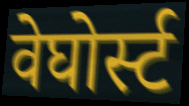
वेघोर्स्ट